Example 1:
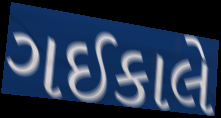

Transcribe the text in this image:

ગઈકાલે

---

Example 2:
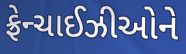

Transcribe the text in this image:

ફ્રેન્ચાઈઝીઓને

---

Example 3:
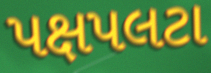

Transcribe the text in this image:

પક્ષપલટા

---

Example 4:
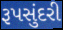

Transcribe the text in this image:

રૂપસુંદરી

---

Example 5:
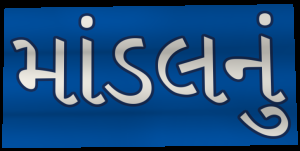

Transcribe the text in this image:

માંડલનું